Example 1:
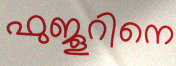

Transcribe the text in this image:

ഫുജൂറിനെ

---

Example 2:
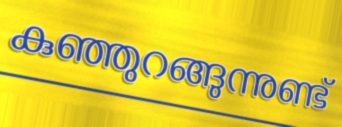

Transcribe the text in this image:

കുഞ്ഞുറങ്ങുന്നുണ്ട്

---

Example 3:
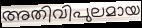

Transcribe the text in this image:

അതിവിപുലമായ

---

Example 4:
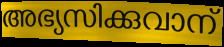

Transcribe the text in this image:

അഭ്യസിക്കുവാന്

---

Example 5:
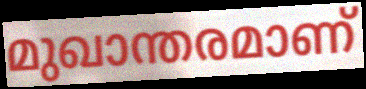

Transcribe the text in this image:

മുഖാന്തരമാണ്